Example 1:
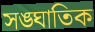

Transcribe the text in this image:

সঙ্ঘাতিক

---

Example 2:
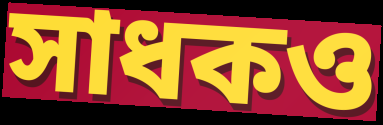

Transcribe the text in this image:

সাধকও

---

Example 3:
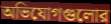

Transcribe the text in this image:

অভিযোগগুলোর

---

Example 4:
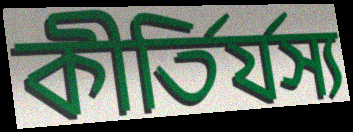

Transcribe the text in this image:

কীর্তির্যস্য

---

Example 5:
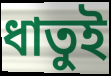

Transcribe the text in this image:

ধাতুই